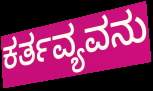
ಕರ್ತವ್ಯವನು